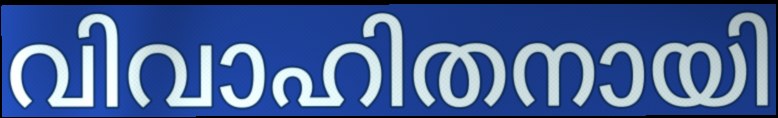
വിവാഹിതനായി